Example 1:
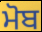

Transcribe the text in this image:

ਮੋਬ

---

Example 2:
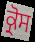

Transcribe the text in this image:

ਕ੍ਰੋਸ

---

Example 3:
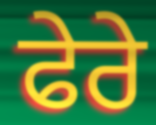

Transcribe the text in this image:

ਫੇਰੇ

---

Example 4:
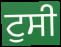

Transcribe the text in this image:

ਟੁਸੀ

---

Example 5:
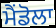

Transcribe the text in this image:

ਮੈਂਡੋਲਾ